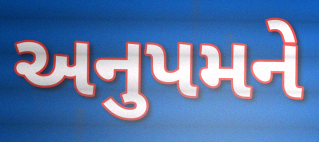
અનુપમને